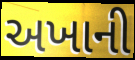
અખાની